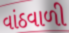
વાંઠવાળી